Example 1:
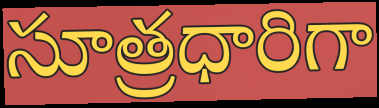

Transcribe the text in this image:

సూత్రధారిగా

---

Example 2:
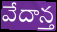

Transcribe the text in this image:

వేదాన్త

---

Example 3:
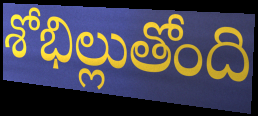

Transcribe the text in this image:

శోభిల్లుతోంది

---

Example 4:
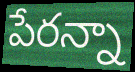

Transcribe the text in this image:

పేరన్నా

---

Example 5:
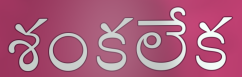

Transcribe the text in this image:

శంకలేక